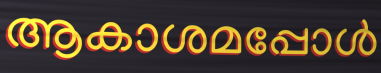
ആകാശമപ്പോൾ